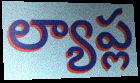
ల్యాప్ల